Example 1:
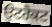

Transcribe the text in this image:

ਉਟਰੈਕਟ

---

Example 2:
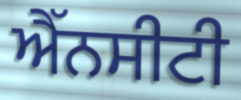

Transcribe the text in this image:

ਐੱਨਸੀਟੀ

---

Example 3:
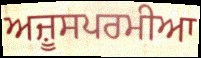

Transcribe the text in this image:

ਅਜ਼ੂਸਪਰਮੀਆ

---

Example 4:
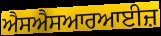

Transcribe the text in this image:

ਐਸਐਸਆਰਆਈਜ਼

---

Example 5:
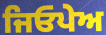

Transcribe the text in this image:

ਜਿਓਪੇਅ